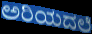
ಅರಿಯದಲೆ